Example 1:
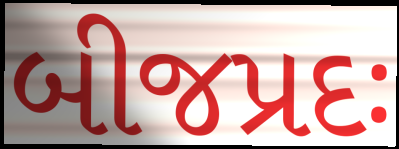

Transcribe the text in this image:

બીજપ્રદઃ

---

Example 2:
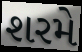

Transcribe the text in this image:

શરમે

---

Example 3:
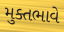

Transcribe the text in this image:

મુક્તભાવે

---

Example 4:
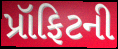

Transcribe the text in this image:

પ્રૉફિટની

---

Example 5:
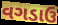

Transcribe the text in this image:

વગડાઉ